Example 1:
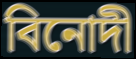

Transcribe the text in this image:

বিনোদী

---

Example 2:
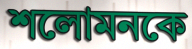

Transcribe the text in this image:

শলোমনকে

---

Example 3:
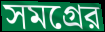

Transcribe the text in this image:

সমগ্রের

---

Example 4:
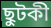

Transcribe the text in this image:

ছুটকী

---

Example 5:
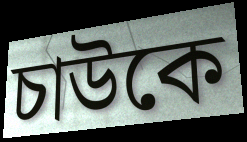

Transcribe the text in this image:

চাউকে